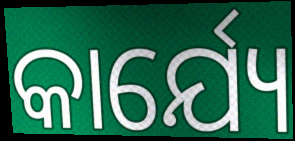
କାର୍ଯ୍ୟେ